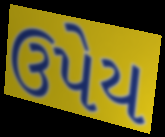
ઉપેય